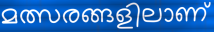
മത്സരങ്ങളിലാണ്